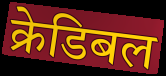
क्रेडिबल